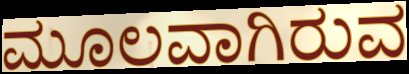
ಮೂಲವಾಗಿರುವ